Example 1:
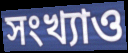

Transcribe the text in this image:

সংখ্যাও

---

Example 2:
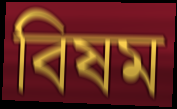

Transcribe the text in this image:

বিষম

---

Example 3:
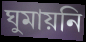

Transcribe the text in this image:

ঘুমায়নি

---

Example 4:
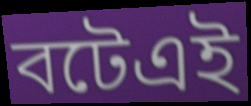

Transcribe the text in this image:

বটেএই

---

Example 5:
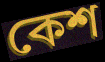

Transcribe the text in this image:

কেশ